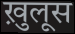
ख़ुलूस